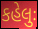
કહેલુઃ